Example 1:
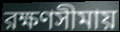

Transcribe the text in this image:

রক্ষণসীমায়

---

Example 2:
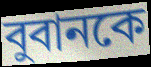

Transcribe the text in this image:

বুবানকে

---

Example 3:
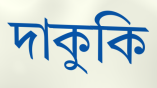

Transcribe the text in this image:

দাকুকি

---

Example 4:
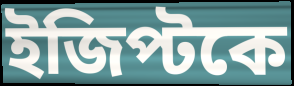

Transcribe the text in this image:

ইজিপ্টকে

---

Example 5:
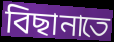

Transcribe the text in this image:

বিছানাতে